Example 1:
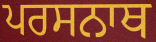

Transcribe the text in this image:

ਪਰਸਨਾਥ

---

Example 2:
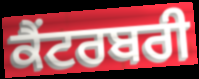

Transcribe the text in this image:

ਕੈਂਟਰਬਰੀ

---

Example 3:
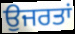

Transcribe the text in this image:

ਉਜਰਤਾਂ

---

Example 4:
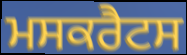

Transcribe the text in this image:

ਮਸਕਰੈਟਸ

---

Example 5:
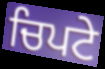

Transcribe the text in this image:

ਚਿਪਟੇ